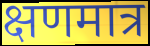
क्षणमात्र